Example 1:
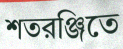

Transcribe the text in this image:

শতরঞ্জিতে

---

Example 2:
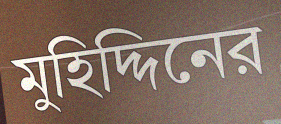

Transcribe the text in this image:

মুহিদ্দিনের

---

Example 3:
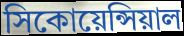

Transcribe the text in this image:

সিকোয়েন্সিয়াল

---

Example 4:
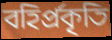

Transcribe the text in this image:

বহির্প্রকৃতি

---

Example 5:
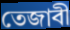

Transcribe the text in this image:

তেজাবী